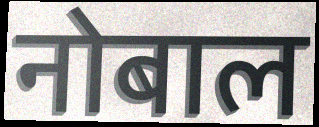
नोबाल